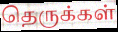
தெருக்கள்